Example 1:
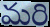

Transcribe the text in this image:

మరి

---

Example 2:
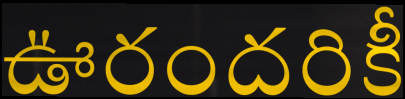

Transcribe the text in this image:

ఊరందరికీ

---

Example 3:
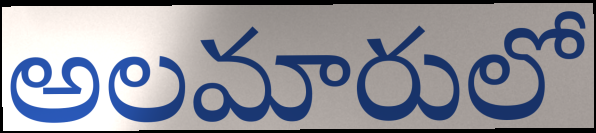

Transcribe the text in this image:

అలమారులో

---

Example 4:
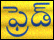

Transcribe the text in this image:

ఫ్రెడ్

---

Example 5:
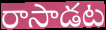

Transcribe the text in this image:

రాసాడట